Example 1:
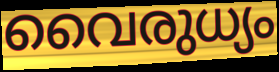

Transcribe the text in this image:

വൈരുധ്യം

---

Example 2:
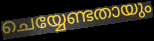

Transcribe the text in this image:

ചെയ്യേണ്ടതായും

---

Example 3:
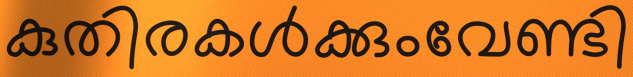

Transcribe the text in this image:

കുതിരകൾക്കുംവേണ്ടി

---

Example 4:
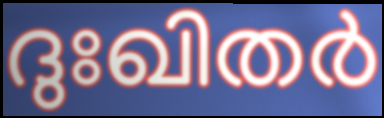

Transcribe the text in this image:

ദുഃഖിതർ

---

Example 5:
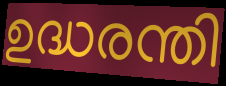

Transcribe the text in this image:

ഉദ്ധരന്തി